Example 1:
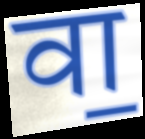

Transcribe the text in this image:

वा॒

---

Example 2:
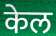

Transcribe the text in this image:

केल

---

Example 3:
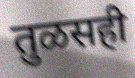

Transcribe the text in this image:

तुळसही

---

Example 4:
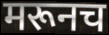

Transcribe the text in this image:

मरूनच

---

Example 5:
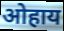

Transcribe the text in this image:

ओहाय